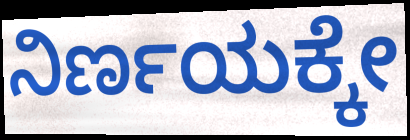
ನಿರ್ಣಯಕ್ಕೇ